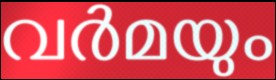
വർമയും